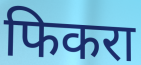
फिकरा